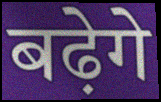
बढ़ेगे